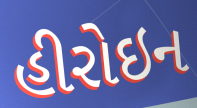
હીરોઇન